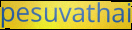
pesuvathai